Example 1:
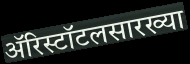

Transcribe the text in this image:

ॲरिस्टॉटलसारख्या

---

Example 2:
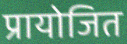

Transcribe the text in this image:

प्रायोजित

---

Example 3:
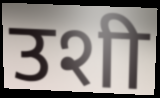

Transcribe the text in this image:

उशी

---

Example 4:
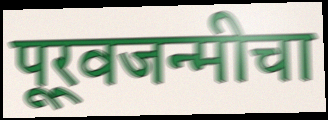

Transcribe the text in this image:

पूर्वजन्मीचा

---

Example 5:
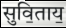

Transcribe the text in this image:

सुवि॒ताय॒